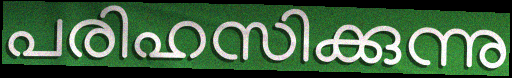
പരിഹസിക്കുന്നു